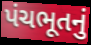
પંચભૂતનું